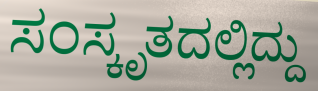
ಸಂಸ್ಕೃತದಲ್ಲಿದ್ದು